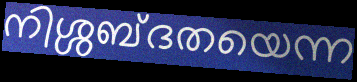
നിശ്ശബ്ദതയെന്ന